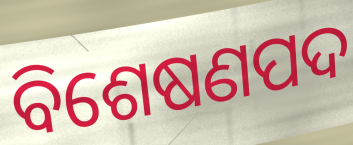
ବିଶେଷଣପଦ